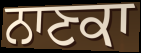
ਨਾਣਕਾ